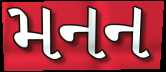
મનન